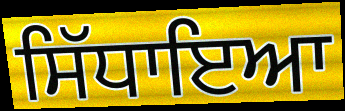
ਸਿੱਧਾਇਆ